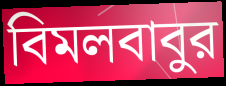
বিমলবাবুর